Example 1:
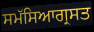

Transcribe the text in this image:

ਸਮੱਸਿਆਗ੍ਰਸਤ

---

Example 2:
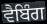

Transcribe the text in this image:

ਵੈਬਿੰਗ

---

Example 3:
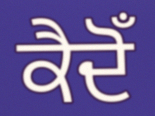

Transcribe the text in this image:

ਕੈਦੋਁ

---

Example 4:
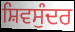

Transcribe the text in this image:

ਸ਼ਿਵਸੁੰਦਰ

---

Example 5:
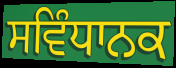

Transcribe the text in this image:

ਸਵਿੰਧਾਨਕ